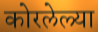
कोरलेल्या